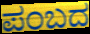
ಪಂಬದ